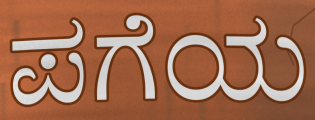
ಪಗೆಯ